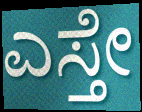
ಎಸ್ತೇ